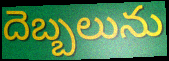
దెబ్బలును